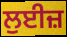
ਲੁਈਜ਼